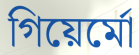
গিয়ের্মো